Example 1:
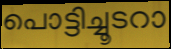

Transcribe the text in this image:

പൊട്ടിച്ചൂടറാ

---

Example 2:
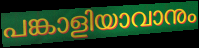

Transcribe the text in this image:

പങ്കാളിയാവാനും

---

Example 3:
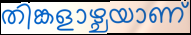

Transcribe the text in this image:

തിങ്കളാഴ്ചയാണ്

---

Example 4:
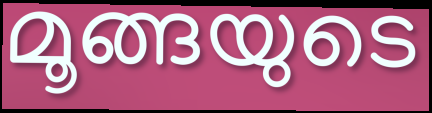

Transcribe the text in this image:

മൂങ്ങയുടെ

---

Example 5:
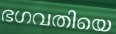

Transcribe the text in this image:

ഭഗവതിയെ